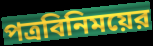
পত্রবিনিময়ের